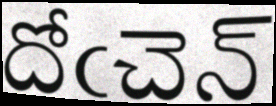
దోఁచెన్